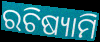
ରଚିଷ୍ୟାମି